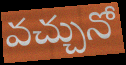
వచ్చునో